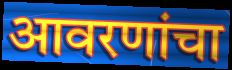
आवरणांचा